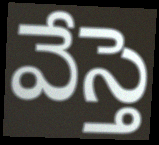
వేస్తె